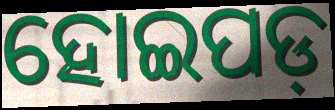
ହୋଇପଡ଼